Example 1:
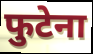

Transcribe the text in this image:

फुटेना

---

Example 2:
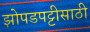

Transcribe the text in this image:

झोपडपट्टीसाठी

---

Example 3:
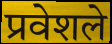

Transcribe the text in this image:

प्रवेशले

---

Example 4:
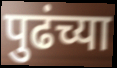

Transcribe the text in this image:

पुढंच्या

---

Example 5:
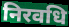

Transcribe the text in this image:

निरवधि